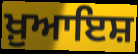
ਖ਼ੁਆਇਸ਼